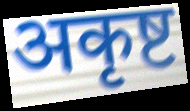
अकृष्ट